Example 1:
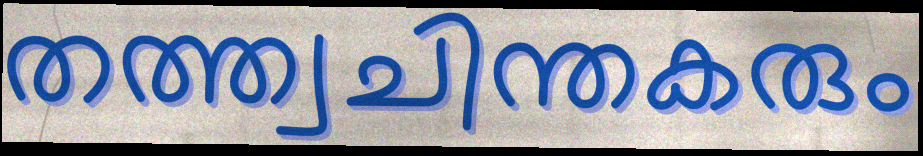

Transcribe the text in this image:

തത്ത്വചിന്തകരും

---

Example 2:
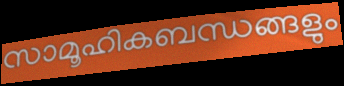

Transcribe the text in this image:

സാമൂഹികബന്ധങ്ങളും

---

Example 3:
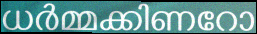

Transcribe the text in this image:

ധർമ്മക്കിണറോ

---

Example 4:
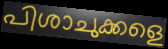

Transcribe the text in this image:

പിശാചുക്കളെ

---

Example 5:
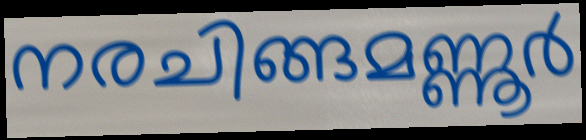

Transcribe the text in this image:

നരചിങ്ങമണ്ണൂർ